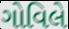
ગોવિલે